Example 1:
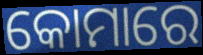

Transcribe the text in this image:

କୋମାରେ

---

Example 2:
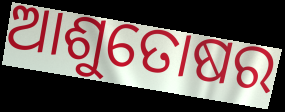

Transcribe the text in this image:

ଆଶୁତୋଷର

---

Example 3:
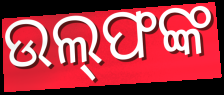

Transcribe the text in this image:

ଉଲ୍‌ଫଙ୍କ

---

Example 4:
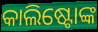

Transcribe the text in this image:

କାଲିଷ୍ଟୋଙ୍କ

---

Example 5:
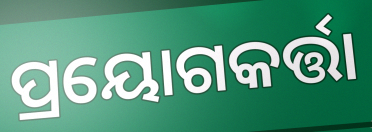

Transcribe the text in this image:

ପ୍ରୟୋଗକର୍ତ୍ତା